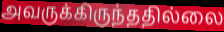
அவருக்கிருந்ததில்லை